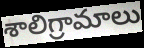
శాలిగ్రామాలు